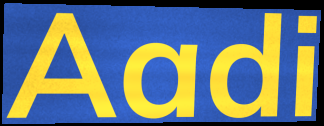
Aadi